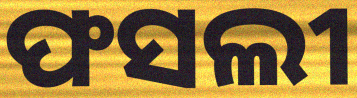
ଫସଲୀ